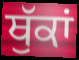
ਥੁੱਕਾਂ